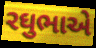
રઘુભાએ